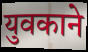
युवकाने